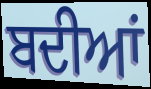
ਬਦੀਆਂ